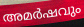
അമർഷവും